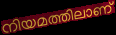
നിയമത്തിലാണ്